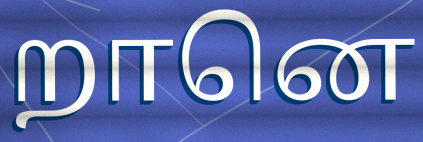
றானெ